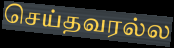
செய்தவரல்ல